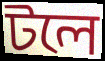
টলে